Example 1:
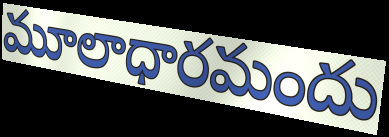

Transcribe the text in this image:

మూలాధారమందు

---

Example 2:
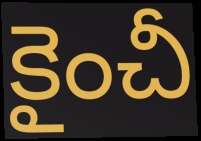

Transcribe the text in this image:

కైంచీ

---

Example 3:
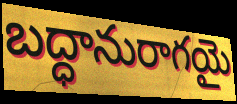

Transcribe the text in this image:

బద్ధానురాగయై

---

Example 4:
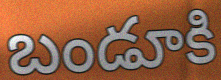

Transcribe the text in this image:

బండూకి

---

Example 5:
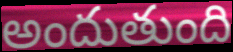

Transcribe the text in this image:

అందుతుంది